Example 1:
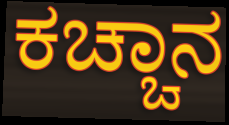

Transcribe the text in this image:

ಕಚ್ಚಾನ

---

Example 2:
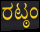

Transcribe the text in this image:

ರಟ್ಠಂ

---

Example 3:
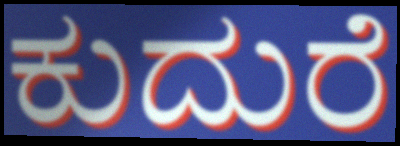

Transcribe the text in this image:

ಕುದುರೆ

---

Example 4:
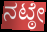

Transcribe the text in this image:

ನಟ್ಠೇ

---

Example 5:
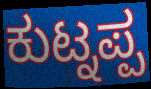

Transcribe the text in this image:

ಕುಟ್ನಪ್ಪ